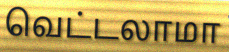
வெட்டலாமா